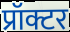
प्रॉक्टर